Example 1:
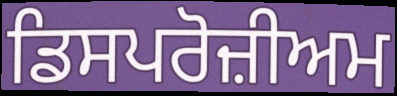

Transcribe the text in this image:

ਡਿਸਪਰੋਜ਼ੀਅਮ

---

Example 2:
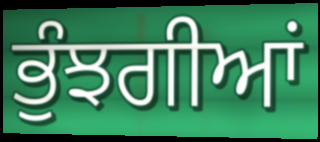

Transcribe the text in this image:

ਭੁੰਝਗੀਆਂ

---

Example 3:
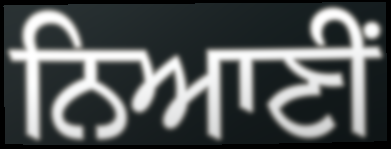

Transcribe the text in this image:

ਨਿਆਣੀਂ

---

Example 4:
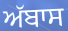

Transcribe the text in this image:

ਅੱਬਾਸ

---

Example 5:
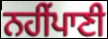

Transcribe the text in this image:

ਨਹੀਂਪਾਣੀ